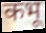
कभू